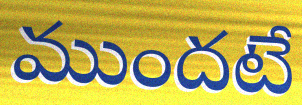
ముందటే